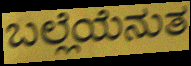
ಬಲ್ಲೆಯೆನುತ